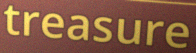
treasure